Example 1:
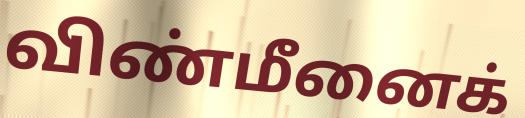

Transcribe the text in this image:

விண்மீனைக்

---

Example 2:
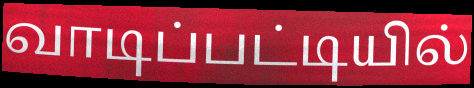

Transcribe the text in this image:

வாடிப்பட்டியில்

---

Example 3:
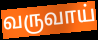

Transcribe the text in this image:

வருவாய்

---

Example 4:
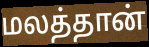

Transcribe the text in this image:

மலத்தான்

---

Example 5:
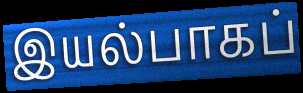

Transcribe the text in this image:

இயல்பாகப்